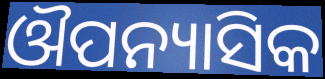
ଔପନ୍ୟାସିକ